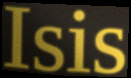
Isis